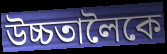
উচ্চতালৈকে